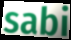
sabi